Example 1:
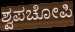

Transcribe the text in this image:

ಶ್ವಪಚೋಪಿ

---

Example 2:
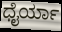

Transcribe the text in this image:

ಧೈರ್ಯಾ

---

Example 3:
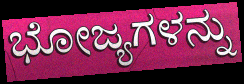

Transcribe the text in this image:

ಭೋಜ್ಯಗಳನ್ನು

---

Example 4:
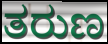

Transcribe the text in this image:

ತರುಣ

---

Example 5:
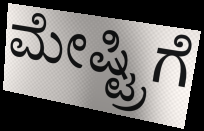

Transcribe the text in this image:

ಮೇಷ್ಟ್ರಿಗೆ